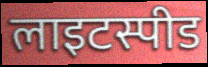
लाइटस्पीड